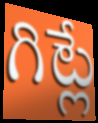
గిట్లే